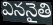
విననైతి